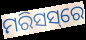
ମରିସସ୍‌ରେ